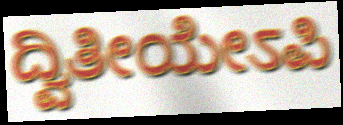
ದ್ವಿತೀಯೇಽಪಿ